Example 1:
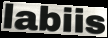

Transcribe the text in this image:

labiis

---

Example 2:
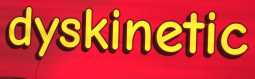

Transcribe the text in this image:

dyskinetic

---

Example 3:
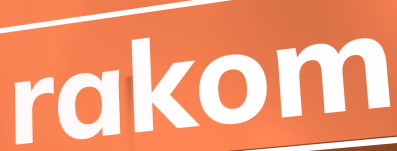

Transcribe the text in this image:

rakom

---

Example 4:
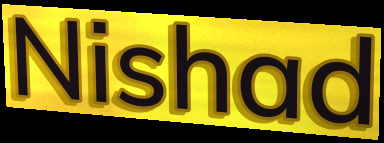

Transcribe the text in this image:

Nishad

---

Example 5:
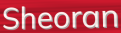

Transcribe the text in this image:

Sheoran